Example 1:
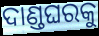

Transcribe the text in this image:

ଦାଣ୍ଡଘରକୁ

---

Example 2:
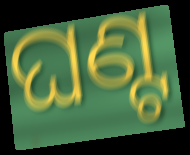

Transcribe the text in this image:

ଘଣ୍ଟ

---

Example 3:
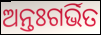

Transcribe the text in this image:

ଅନ୍ତଃଗର୍ଭିତ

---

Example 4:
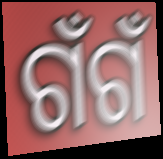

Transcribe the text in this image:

ଗଁଗଁ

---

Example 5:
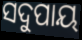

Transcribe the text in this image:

ସଦୁପାୟ